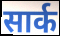
सार्क